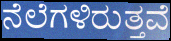
ನೆಲೆಗಳಿರುತ್ತವೆ